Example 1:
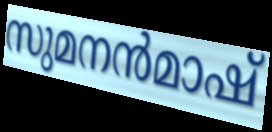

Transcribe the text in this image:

സുമനൻമാഷ്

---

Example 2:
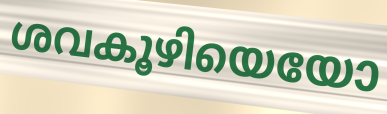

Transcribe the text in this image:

ശവകൂഴിയെയോ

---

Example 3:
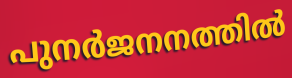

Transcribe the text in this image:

പുനർജനനത്തിൽ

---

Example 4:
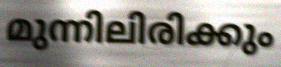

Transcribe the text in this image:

മുന്നിലിരിക്കും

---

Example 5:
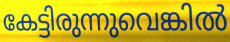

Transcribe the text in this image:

കേട്ടിരുന്നുവെങ്കിൽ